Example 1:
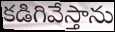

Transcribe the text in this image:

కడిగివేస్తాను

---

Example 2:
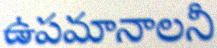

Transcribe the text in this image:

ఉపమానాలనీ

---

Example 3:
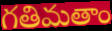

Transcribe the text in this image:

గతిమతాం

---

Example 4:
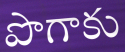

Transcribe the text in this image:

పొగాకు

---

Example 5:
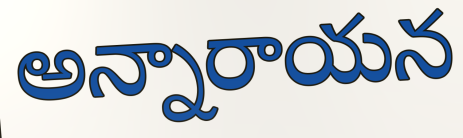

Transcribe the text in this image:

అన్నారాయన